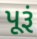
પૂરૂં